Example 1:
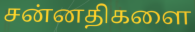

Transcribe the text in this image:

சன்னதிகளை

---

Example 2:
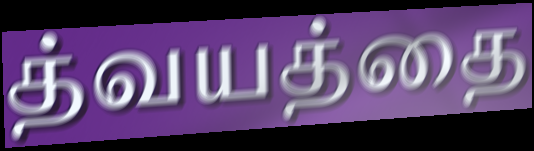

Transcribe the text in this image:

த்வயத்தை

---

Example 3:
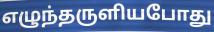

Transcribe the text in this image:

எழுந்தருளியபோது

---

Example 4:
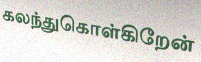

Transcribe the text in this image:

கலந்துகொள்கிறேன்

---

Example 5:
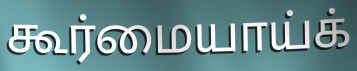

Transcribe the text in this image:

கூர்மையாய்க்